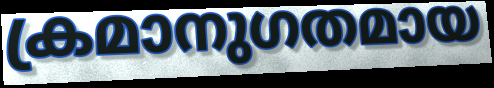
ക്രമാനുഗതമായ